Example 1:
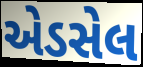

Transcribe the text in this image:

એડસેલ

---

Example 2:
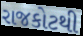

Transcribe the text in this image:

રાજકોટથી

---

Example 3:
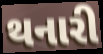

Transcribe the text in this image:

થનારી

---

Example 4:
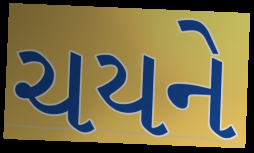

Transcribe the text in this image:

ચયને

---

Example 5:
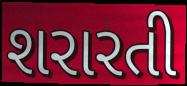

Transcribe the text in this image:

શરારતી